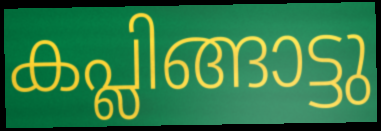
കപ്ലിങ്ങാട്ടു